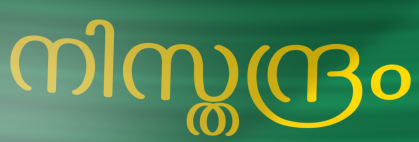
നിസ്തന്ദ്രം